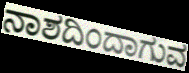
ನಾಶದಿಂದಾಗುವ